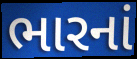
ભારનાં